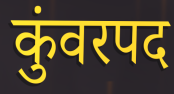
कुंवरपद